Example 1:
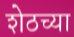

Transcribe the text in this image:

शेठच्या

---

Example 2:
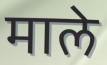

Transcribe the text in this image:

माले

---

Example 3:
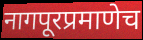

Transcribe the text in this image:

नागपूरप्रमाणेच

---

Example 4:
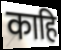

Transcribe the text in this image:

काहि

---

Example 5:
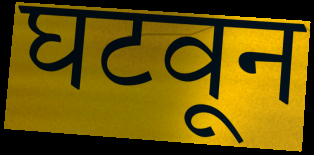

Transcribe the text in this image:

घटवून